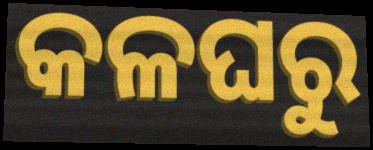
କଳଘରୁ